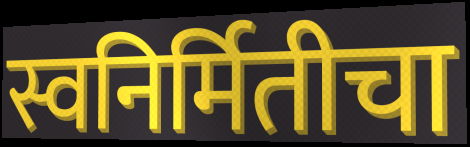
स्वनिर्मितीचा